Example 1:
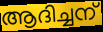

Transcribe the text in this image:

ആദിച്ചന്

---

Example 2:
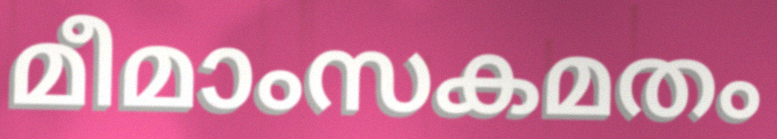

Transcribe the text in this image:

മീമാംസകമതം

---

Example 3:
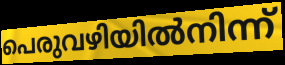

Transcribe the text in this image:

പെരുവഴിയിൽനിന്ന്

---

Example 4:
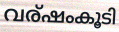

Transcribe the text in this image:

വര്ഷംകൂടി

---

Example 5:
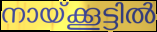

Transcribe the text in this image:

നായ്‌ക്കൂട്ടിൽ